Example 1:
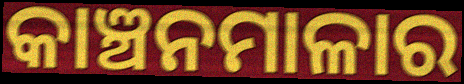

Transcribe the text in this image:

କାଞ୍ଚନମାଳାର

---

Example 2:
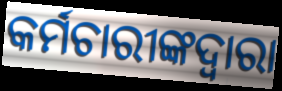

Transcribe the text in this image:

କର୍ମଚାରୀଙ୍କଦ୍ୱାରା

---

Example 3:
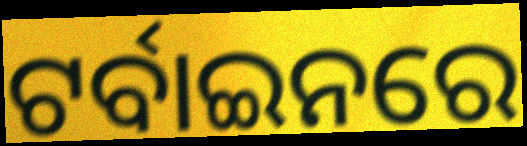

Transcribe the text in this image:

ଟର୍ବାଇନରେ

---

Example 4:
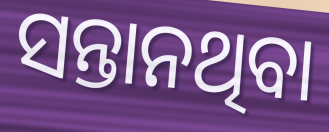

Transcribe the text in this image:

ସନ୍ତାନଥିବା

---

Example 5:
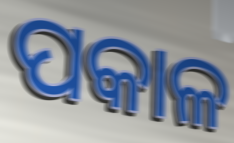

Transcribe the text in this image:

ପକାଳ